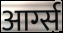
आर्ग्स